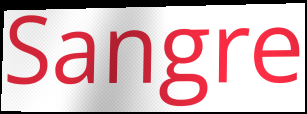
Sangre